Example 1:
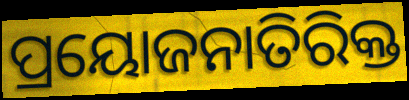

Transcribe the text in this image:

ପ୍ରୟୋଜନାତିରିକ୍ତ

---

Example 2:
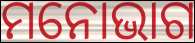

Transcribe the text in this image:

ମନୋଭାଗ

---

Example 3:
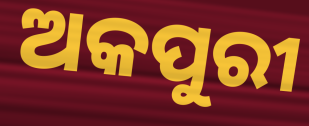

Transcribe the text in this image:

ଅକପୁରୀ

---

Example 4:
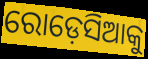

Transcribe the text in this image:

ରୋଡ଼େସିଆକୁ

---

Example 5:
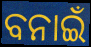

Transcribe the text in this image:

ବନାଇଁ